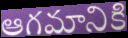
ఆగమానికి